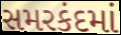
સમરકંદમાં